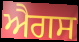
ਐਗਸ